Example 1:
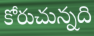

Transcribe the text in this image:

కోరుచున్నది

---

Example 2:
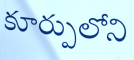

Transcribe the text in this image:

కూర్పులోని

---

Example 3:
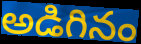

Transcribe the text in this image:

అడిగినం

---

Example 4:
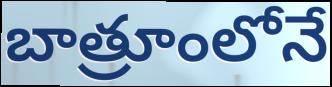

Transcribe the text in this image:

బాత్రూంలోనే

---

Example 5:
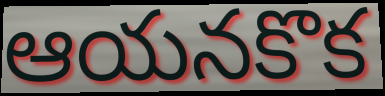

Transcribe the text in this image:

ఆయనకొక